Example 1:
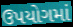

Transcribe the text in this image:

ઉપયોગમાં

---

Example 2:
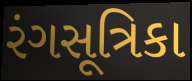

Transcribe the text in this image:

રંગસૂત્રિકા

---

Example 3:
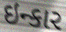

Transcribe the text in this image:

ઇન્કાર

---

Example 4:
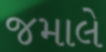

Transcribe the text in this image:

જમાલે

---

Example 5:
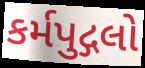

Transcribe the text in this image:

કર્મપુદ્ગલો